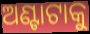
ଅଣ୍ଟାଟାକୁ